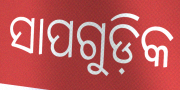
ସାପଗୁଡ଼ିକ